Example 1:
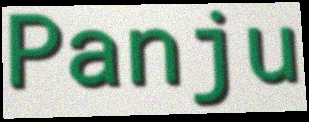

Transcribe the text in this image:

Panju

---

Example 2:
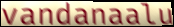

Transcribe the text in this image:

vandanaalu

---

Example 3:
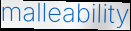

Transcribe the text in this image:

malleability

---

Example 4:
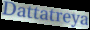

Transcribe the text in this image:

Dattatreya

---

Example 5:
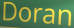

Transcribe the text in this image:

Doran